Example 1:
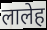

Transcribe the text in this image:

लालेह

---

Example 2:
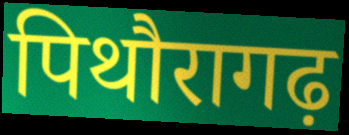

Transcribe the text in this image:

पिथौरागढ़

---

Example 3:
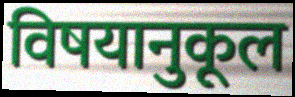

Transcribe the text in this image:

विषयानुकूल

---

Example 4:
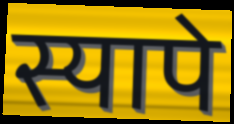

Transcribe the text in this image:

स्यापे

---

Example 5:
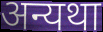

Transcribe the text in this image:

अन्यथा